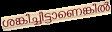
ശങ്കിച്ചിട്ടാണെങ്കിൽ